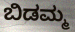
ಬಿಡಮ್ಮ